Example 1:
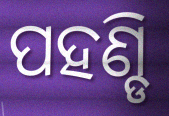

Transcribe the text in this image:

ପହଣ୍ଡି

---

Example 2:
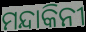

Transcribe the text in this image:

ମନ୍ଦାକିନୀ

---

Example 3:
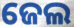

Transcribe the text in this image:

ଜେଲ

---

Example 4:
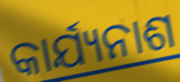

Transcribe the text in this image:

କାର୍ଯ୍ୟନାଶ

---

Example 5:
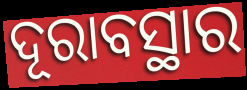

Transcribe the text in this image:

ଦୂରାବସ୍ଥାର